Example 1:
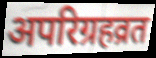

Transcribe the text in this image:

अपरिग्रहव्रत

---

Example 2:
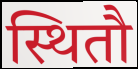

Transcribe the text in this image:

स्थितौ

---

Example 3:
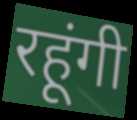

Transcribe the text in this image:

रहूंगी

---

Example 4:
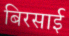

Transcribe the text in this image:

बिरसाई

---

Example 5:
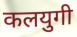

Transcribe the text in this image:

कलयुगी